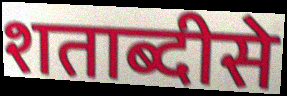
शताब्दीसे